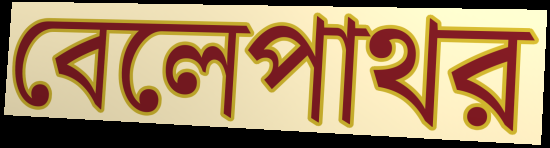
বেলেপাথর